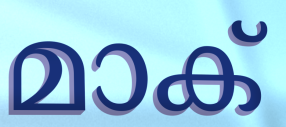
മാക്